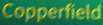
Copperfield